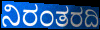
ನಿರಂತರದಿ